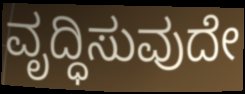
ವೃದ್ಧಿಸುವುದೇ